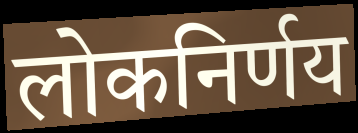
लोकनिर्णय